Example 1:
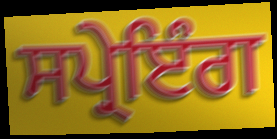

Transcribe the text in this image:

ਸਪ੍ਰੇਇੰਗ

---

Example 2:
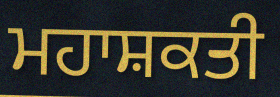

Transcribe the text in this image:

ਮਹਾਸ਼ਕਤੀ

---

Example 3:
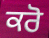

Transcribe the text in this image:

ਕਰੋ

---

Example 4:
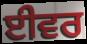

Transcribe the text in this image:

ਈਵਰ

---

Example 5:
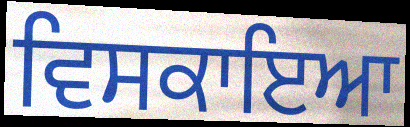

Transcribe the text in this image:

ਵਿਸਕਾਇਆ